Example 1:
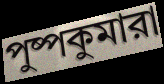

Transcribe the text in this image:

পুষ্পকুমারা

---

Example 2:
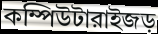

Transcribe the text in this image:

কম্পিউটারাইজড়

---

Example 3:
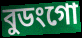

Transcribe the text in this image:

বুডংগো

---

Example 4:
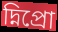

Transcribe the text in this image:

দ্নিপ্রো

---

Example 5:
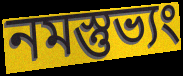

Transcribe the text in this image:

নমস্তুভ্যং